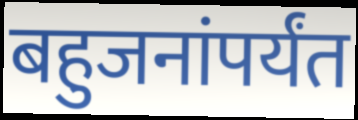
बहुजनांपर्यंत